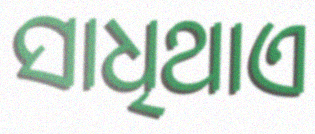
ସାଧିଥାଏ